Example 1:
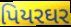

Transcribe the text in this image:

પિયરઘર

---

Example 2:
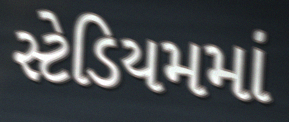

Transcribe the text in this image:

સ્ટેડિયમમાં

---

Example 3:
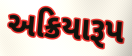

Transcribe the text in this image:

અક્રિયારૂપ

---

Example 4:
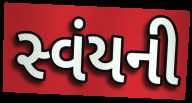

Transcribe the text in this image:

સ્વંયની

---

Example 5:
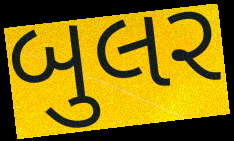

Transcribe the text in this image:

બુલર